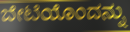
ಬೇಟೆಯೊಂದನ್ನು